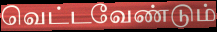
வெட்டவேண்டும்